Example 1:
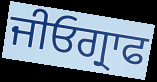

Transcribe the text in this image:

ਜੀਓਗ੍ਰਾਫ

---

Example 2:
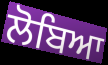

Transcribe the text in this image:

ਲੋਬਿਆ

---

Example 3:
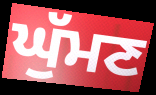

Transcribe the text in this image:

ਘੁੱਮਣ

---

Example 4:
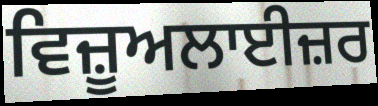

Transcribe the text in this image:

ਵਿਜ਼ੂਅਲਾਈਜ਼ਰ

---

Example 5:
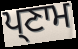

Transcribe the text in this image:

ਪ੍ਣਾਮ